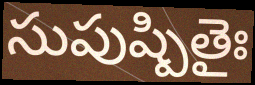
సుపుష్పితైః